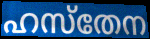
ഹസ്തേന